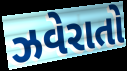
ઝવેરાતો